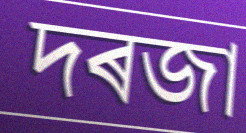
দৰজা